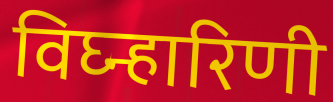
विघ्न्हारिणी